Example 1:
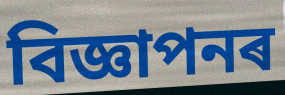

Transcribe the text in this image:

বিজ্ঞাপনৰ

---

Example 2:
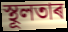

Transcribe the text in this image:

স্থূলতাৰ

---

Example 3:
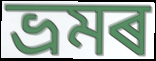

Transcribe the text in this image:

ভ্ৰমৰ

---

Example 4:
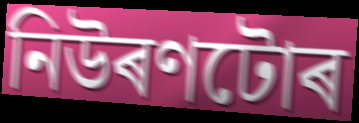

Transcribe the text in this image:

নিউৰণটোৰ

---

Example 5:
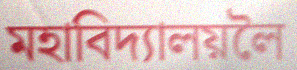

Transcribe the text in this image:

মহাবিদ্যালয়লৈ